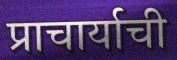
प्राचार्याची